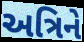
અત્રિને